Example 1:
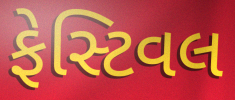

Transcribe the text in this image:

ફેસ્ટિવલ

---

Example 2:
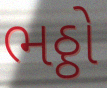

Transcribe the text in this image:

ભઠ્ઠો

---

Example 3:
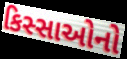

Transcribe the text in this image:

કિસ્સાઓનો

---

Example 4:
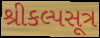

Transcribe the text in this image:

શ્રીકલ્પસૂત્ર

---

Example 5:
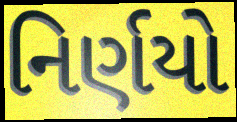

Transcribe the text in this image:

નિર્ણયો